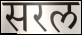
सरल